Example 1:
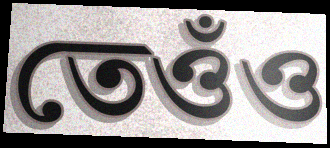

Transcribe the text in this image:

তেওঁও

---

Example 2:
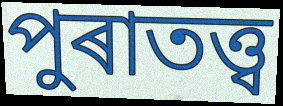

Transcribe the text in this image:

পুৰাতত্ত্ব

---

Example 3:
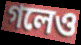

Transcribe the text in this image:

গলেও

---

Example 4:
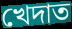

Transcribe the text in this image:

খেদাত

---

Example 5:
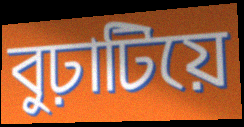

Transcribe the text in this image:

বুঢ়াটিয়ে